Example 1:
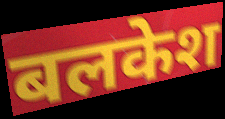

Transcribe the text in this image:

बलकेश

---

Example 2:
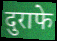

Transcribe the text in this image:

दुराफे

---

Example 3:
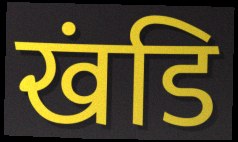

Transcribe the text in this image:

खंडि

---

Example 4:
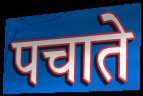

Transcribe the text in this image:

पचाते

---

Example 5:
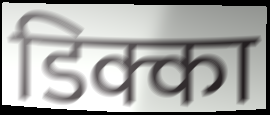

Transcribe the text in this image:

डिक्का